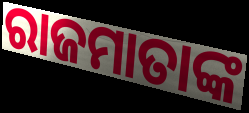
ରାଜମାତାଙ୍କ